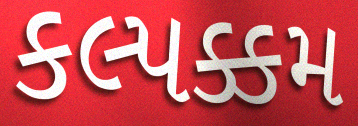
કલ્પક્કમ